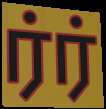
ர்ர்